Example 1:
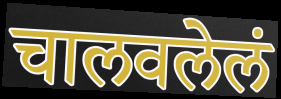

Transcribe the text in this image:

चालवलेलं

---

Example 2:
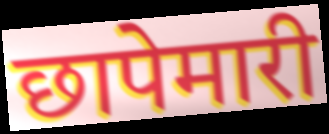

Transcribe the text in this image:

छापेमारी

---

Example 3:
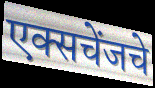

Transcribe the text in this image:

एक्सचेंजचे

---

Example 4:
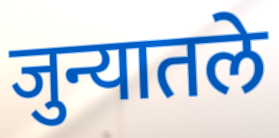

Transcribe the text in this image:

जुन्यातले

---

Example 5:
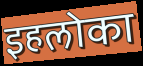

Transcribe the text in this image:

इहलोका